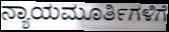
ನ್ಯಾಯಮೂರ್ತಿಗಳಿಗೆ